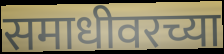
समाधीवरच्या